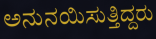
ಅನುನಯಿಸುತ್ತಿದ್ದರು